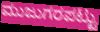
ಮುಜುಗರಪಟ್ಟು